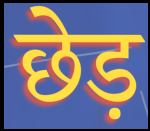
छेड़